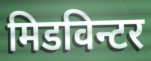
मिडविन्टर